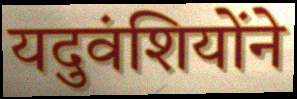
यदुवंशियोंने